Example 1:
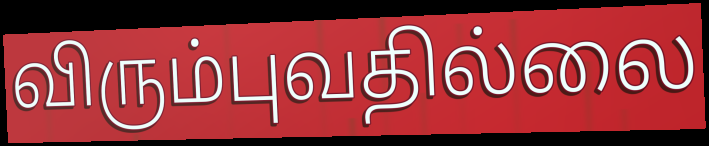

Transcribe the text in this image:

விரும்புவதில்லை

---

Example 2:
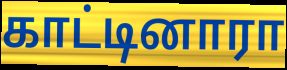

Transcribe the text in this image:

காட்டினாரா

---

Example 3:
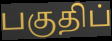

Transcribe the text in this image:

பகுதிப்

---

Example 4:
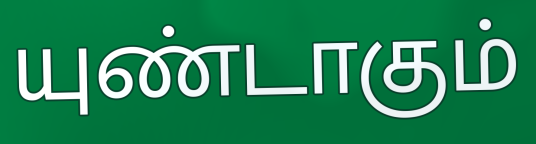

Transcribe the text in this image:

யுண்டாகும்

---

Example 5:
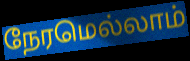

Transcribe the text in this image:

நேரமெல்லாம்